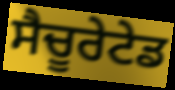
ਸੈਚੂਰੇਟੇਡ